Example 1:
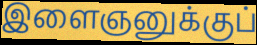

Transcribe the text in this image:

இளைஞனுக்குப்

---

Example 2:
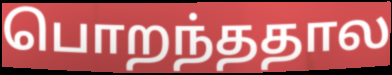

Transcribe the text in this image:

பொறந்ததால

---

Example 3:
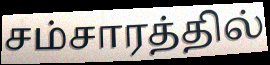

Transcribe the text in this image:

சம்சாரத்தில்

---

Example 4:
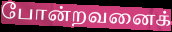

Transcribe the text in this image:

போன்றவனைக்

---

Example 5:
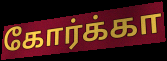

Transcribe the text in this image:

கோர்க்கா